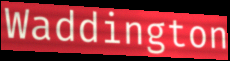
Waddington